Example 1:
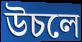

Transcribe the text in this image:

উচলে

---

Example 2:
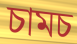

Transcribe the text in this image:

চামচ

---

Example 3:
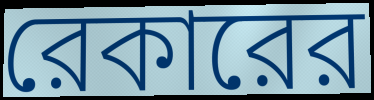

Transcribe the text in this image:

রেকারের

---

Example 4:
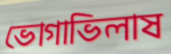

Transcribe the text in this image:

ভোগাভিলাষ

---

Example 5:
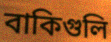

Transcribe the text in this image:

বাকিগুলি